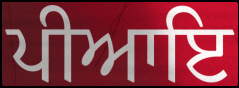
ਪੀਆਇ